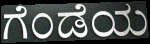
ಗೆಂಡೆಯ